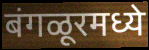
बंगळूरमध्ये